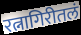
रत्नागिरीतलं